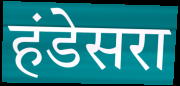
हंडेसरा